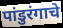
पांडुरंगाचे